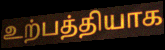
உற்பத்தியாக